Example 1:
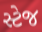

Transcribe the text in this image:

સ્ટેજ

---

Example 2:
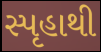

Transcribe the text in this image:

સ્પૃહાથી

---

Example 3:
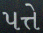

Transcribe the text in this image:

પત્તે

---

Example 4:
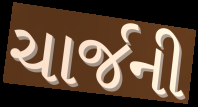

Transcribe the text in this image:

ચાર્જની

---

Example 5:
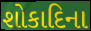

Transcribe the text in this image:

શોકાદિના